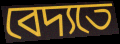
বেদ্যতে